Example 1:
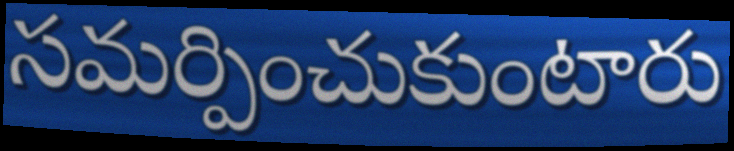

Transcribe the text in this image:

సమర్పించుకుంటారు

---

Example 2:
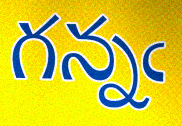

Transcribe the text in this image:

గన్నఁ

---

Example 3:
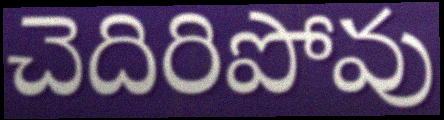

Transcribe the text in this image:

చెదిరిపోవు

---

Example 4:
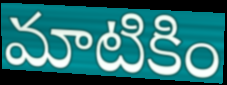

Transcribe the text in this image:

మాటికిం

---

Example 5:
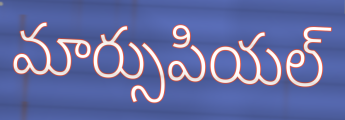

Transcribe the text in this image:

మార్సుపియల్